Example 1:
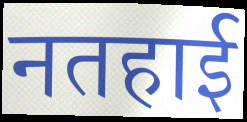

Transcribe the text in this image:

नतहाई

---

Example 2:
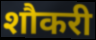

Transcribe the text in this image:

शौकरी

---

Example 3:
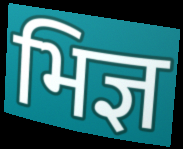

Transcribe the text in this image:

भिज्ञ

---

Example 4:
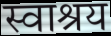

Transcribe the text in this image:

स्वाश्रय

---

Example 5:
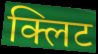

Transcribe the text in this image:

क्लिट